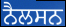
ਨੈਲਸਨ